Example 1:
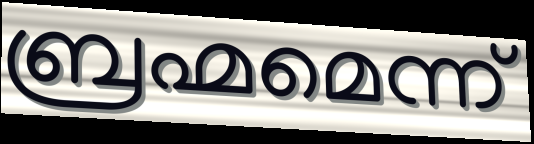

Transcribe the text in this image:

ബ്രഹ്മമെന്ന്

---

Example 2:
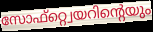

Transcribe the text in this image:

സോഫ്റ്റ്വെയറിന്റെയും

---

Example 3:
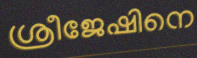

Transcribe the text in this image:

ശ്രീജേഷിനെ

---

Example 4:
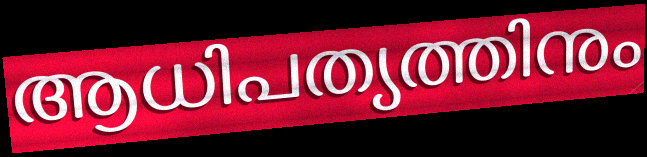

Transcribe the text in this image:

ആധിപത്യത്തിനും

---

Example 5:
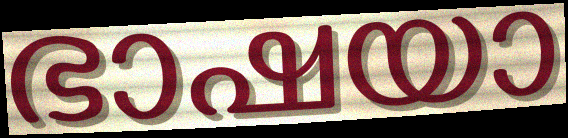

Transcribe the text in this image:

ഭാഷയാ